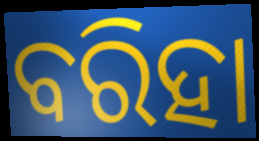
ବରିହା